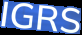
IGRS